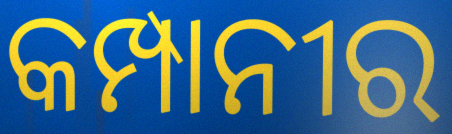
କମ୍ପାନୀର